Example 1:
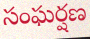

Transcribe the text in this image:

సంఘర్షణ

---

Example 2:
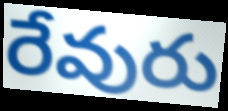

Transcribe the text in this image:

రేవురు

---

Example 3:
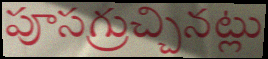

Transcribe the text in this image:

పూసగ్రుచ్చినట్లు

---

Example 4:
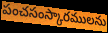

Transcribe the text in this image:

పంచసంస్కారములను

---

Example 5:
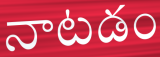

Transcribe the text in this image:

నాటడం